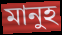
মানুহ